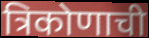
त्रिकोणाची